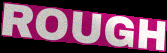
ROUGH